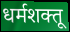
धर्मशक्तू